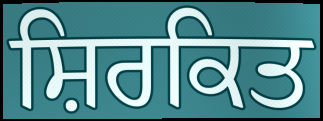
ਸ਼ਿਰਕਿਤ